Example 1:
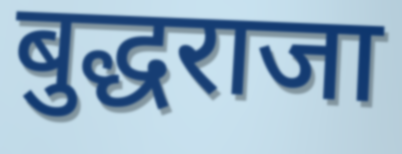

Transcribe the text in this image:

बुद्धराजा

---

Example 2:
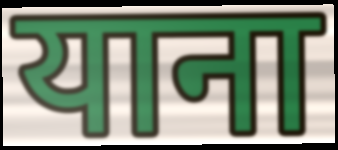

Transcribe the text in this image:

याना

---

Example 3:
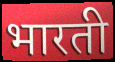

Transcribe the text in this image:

भारती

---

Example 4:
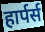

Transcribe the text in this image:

हार्पर्स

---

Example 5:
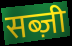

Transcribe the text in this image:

सब्ज़ी